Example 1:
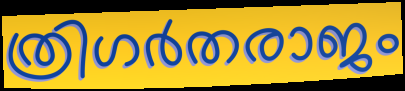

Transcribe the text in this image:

ത്രിഗർതരാജം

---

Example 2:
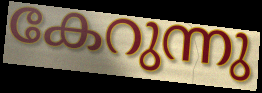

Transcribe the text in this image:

കേറുന്നു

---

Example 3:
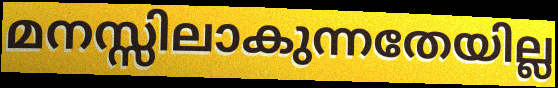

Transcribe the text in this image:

മനസ്സിലാകുന്നതേയില്ല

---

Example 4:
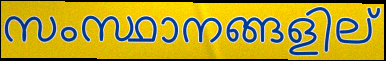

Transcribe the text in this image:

സംസ്ഥാനങ്ങളില്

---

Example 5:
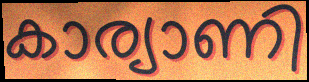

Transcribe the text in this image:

കാര്യാണി